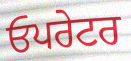
ਓਪਰੇਟਰ